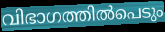
വിഭാഗത്തിൽപെടും